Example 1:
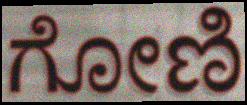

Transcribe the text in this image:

ಗೋಣಿ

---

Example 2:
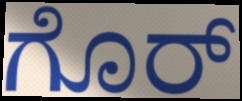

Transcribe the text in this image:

ಗೊರ್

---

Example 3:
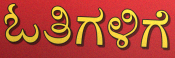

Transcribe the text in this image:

ಓತಿಗಳಿಗೆ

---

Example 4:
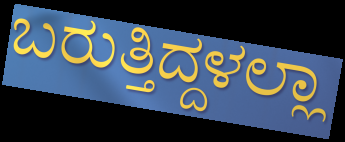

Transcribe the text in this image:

ಬರುತ್ತಿದ್ದಳಲ್ಲಾ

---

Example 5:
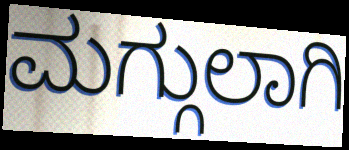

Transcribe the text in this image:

ಮಗ್ಗುಲಾಗಿ